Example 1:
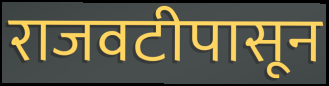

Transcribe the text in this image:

राजवटीपासून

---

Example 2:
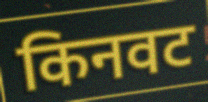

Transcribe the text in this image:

किनवट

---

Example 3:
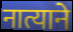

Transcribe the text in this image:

नात्याने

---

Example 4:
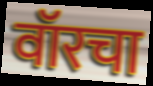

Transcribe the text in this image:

वॉरचा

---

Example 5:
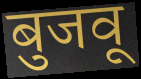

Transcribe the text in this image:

बुजवू